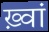
ख़्वां